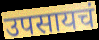
उपसायचं